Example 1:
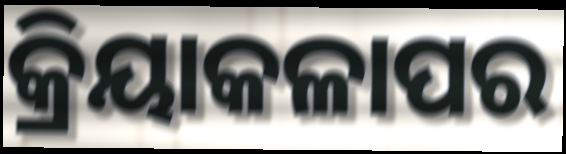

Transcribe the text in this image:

କ୍ରିୟାକଳାପର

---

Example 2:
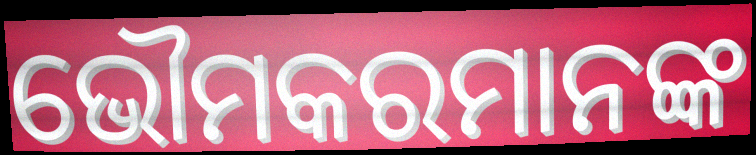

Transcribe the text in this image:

ଭୌମକରମାନଙ୍କ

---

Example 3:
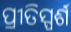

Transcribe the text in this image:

ପ୍ରୀତିସ୍ପର୍ଶ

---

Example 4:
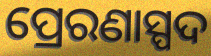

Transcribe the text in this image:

ପ୍ରେରଣାସ୍ପଦ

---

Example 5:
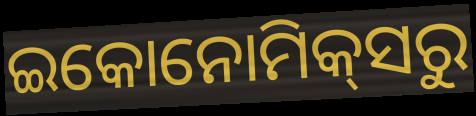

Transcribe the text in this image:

ଇକୋନୋମିକ୍‌ସରୁ